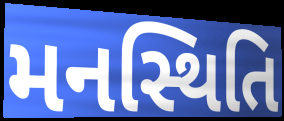
મનસ્થિતિ